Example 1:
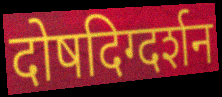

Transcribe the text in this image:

दोषदिग्दर्शन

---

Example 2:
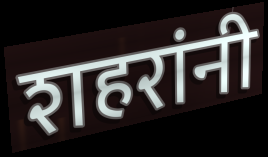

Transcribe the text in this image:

शहरांनी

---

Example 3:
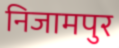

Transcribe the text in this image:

निजामपुर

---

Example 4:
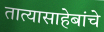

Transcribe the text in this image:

तात्यासाहेबांचे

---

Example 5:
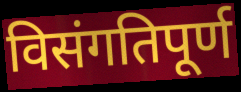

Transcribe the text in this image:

विसंगतिपूर्ण